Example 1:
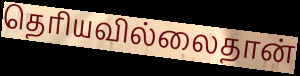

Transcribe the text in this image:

தெரியவில்லைதான்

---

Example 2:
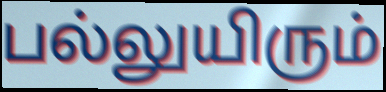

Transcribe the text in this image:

பல்லுயிரும்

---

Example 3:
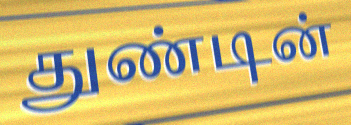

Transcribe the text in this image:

துண்டின்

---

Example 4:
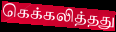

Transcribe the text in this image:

கெக்கலித்தது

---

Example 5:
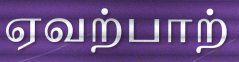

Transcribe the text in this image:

ஏவற்பாற்